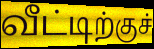
வீட்டிற்குச்